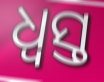
ଧ୍ବସ୍ତ